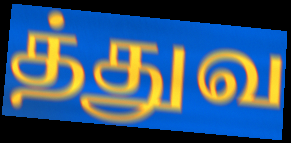
த்துவ